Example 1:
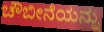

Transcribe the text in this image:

ಚೌಬೀನೆಯನ್ನು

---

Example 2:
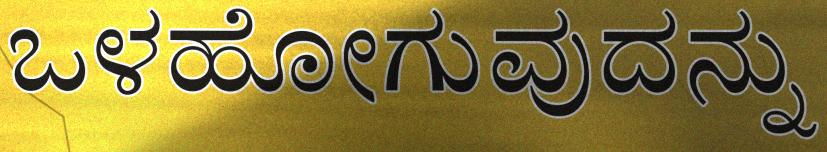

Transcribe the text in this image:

ಒಳಹೋಗುವುದನ್ನು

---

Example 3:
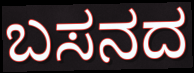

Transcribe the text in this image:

ಬಸನದ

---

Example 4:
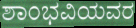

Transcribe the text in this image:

ಶಾಂಭವಿಯವರ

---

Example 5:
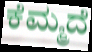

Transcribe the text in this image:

ಕೆಮ್ಮದೆ